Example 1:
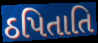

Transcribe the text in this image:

ઠપિતાતિ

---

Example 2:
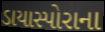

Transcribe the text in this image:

ડાયાસ્પોરાના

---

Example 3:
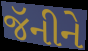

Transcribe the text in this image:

જૅનીને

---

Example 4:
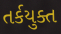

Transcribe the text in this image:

તર્કયુક્ત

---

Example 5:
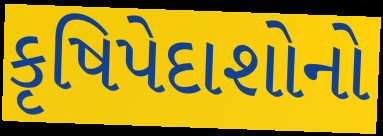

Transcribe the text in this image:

કૃષિપેદાશોનો